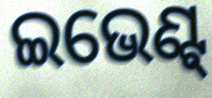
ଇଭେଣ୍ଟ୍